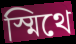
স্মিথে